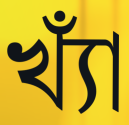
খ্যাঁ